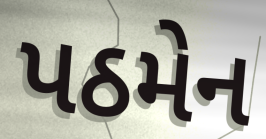
પઠમેન